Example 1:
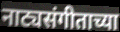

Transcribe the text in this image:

नाट्यसंगीताच्या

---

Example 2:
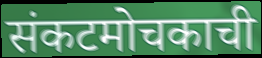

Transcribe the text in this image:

संकटमोचकाची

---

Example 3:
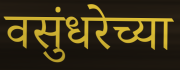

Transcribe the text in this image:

वसुंधरेच्या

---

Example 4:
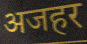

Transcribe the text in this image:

अजहर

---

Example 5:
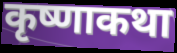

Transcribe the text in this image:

कृष्णाकथा